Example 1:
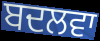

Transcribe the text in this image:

ਬਦਲਵਾ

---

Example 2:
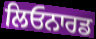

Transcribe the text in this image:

ਲਿਓਨਾਰਡ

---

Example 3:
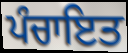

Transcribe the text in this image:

ਪੰਚਾਇਤ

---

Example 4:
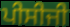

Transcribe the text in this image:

ਪੀਸੀਜੀ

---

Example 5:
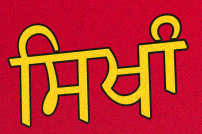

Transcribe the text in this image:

ਸਿਖਾੰ